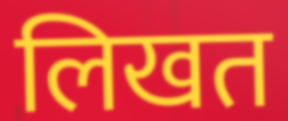
लिखत